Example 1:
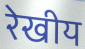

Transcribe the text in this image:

रेखीय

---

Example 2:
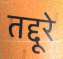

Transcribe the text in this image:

तद्दूरे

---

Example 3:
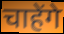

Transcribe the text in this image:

चाहेंगे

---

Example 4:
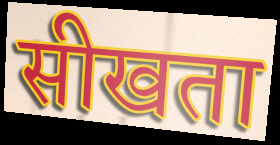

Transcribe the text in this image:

सीखता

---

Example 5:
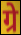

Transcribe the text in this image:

ग्रे